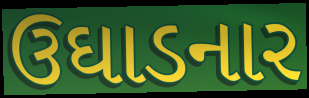
ઉઘાડનાર